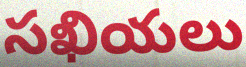
సఖియలు